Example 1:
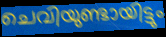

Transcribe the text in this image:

ചെവിയുണ്ടായിട്ടും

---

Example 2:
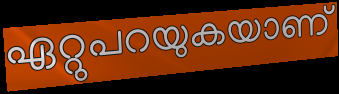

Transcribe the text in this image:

ഏറ്റുപറയുകയാണ്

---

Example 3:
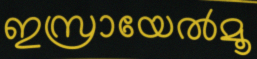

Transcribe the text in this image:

ഇസ്രായേൽമൂ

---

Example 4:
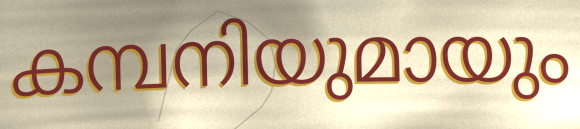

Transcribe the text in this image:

കമ്പനിയുമായും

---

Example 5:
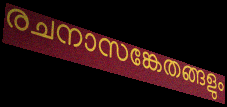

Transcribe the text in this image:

രചനാസങ്കേതങ്ങളും